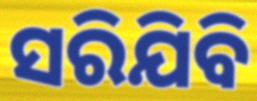
ସରିଯିବି